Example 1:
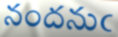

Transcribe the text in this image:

నందనుఁ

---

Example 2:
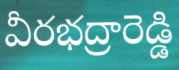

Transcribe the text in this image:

వీరభద్రారెడ్డి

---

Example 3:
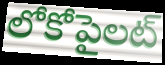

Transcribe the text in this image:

లోకోపైలట్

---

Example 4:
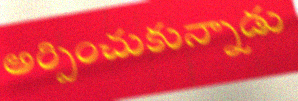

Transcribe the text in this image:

అర్పించుకున్నాడు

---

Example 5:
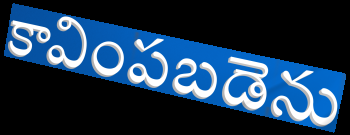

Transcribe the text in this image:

కావింపబడెను